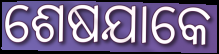
ଶେଷଯାକେ